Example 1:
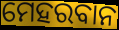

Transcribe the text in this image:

ମେହରବାନ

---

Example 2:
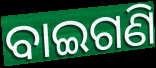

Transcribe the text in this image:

ବାଇଗଣି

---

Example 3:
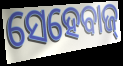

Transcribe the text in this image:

ସେହେବାଜ୍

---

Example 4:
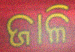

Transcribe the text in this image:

ଜାଳି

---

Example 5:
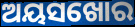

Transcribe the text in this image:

ଅୟସଖୋର